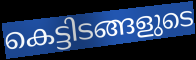
കെട്ടിടങ്ങളുടെ